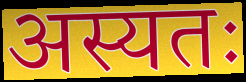
अस्यतः